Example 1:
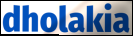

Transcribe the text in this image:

dholakia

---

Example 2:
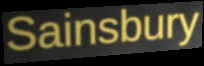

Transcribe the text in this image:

Sainsbury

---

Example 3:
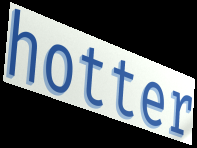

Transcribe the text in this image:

hotter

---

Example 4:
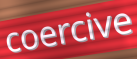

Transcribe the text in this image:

coercive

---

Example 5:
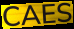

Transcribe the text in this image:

CAES